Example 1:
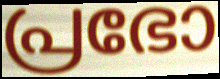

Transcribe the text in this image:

പ്രഭോ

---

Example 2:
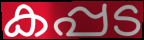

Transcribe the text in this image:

കപ്പട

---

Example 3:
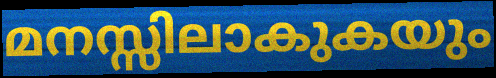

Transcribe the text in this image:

മനസ്സിലാകുകയും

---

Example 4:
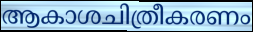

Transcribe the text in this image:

ആകാശചിത്രീകരണം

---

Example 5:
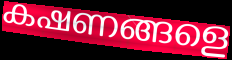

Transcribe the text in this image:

കഷണങ്ങളെ